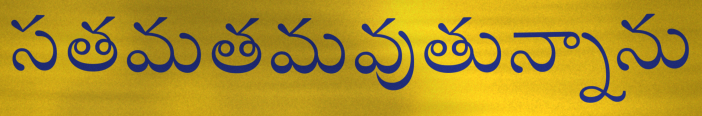
సతమతమవుతున్నాను